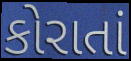
કોરાતાં